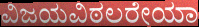
ವಿಜಯವಿಠಲರೇಯಾ